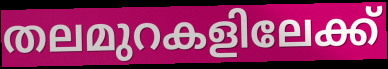
തലമുറകളിലേക്ക്